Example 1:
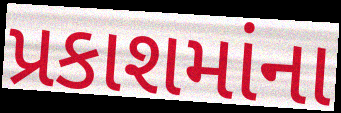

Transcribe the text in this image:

પ્રકાશમાંના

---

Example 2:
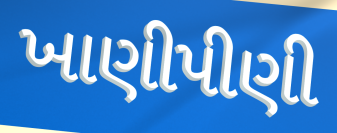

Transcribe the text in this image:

ખાણીપીણી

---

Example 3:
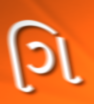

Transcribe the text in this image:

ગિ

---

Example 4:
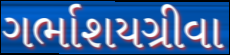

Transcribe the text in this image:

ગર્ભાશયગ્રીવા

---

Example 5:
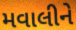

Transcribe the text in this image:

મવાલીને